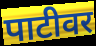
पाटीवर